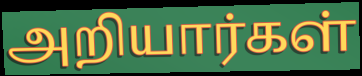
அறியார்கள்